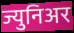
ज्युनिअर